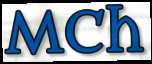
MCh